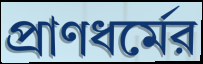
প্রাণধর্মের